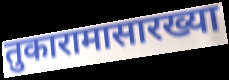
तुकारामासारख्या